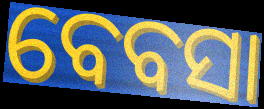
ବେବସା